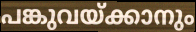
പങ്കുവയ്ക്കാനും